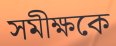
সমীক্ষকে